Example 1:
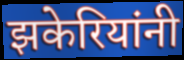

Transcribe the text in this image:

झकेरियांनी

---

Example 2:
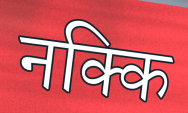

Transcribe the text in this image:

नक्कि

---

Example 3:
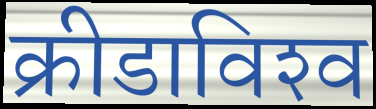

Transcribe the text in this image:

क्रीडाविश्व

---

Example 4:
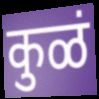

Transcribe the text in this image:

कुळं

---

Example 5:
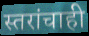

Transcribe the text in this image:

स्तरांचाही